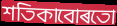
শতিকাবোৰতো